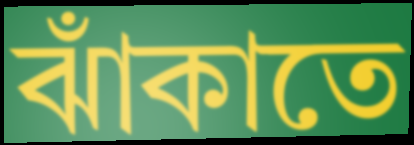
ঝাঁকাতে